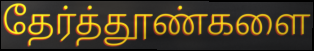
தேர்த்தூண்களை